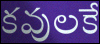
కవులకే